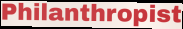
Philanthropist